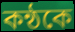
কন্ঠকে